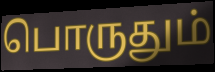
பொருதும்